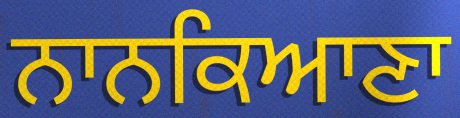
ਨਾਨਕਿਆਣਾ